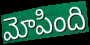
మోపింది